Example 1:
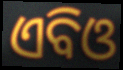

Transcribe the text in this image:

ଏବିଓ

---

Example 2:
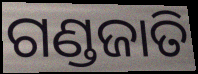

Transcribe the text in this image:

ଗଣ୍ଡଜାତି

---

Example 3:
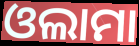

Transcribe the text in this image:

ଓଲାମା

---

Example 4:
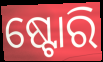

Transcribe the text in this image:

ଷ୍ଟୋରି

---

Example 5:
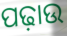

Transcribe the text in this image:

ପଢ଼ାଉ